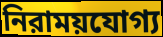
নিরাময়যোগ্য